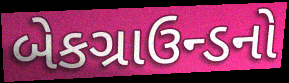
બેકગ્રાઉન્ડનો